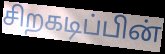
சிறகடிப்பின்